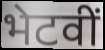
भेटवीं